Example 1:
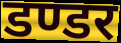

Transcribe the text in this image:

डण्डर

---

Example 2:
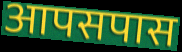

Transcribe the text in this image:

आपसपास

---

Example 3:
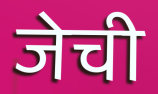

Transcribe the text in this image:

जेची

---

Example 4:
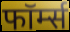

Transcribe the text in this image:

फॉर्म्स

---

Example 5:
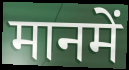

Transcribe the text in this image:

मानमें